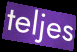
teljes